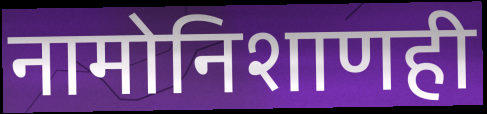
नामोनिशाणही